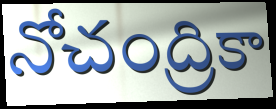
నోచంద్రికా